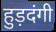
हुड़दंगी